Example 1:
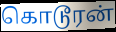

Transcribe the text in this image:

கொடூரன்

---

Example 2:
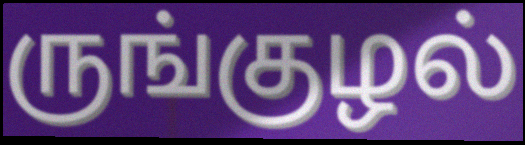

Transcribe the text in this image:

ருங்குழல்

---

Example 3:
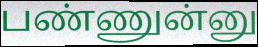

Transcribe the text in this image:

பண்ணுன்னு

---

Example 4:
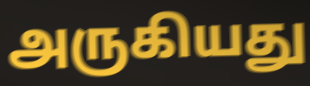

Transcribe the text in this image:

அருகியது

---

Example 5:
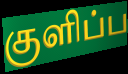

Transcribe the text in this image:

குளிப்ப